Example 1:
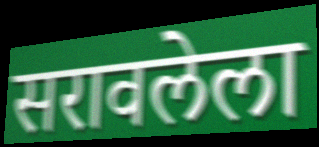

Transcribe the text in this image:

सरावलेला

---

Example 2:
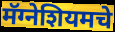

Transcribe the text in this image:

मॅग्नेशियमचे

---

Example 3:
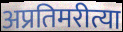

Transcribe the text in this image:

अप्रतिमरीत्या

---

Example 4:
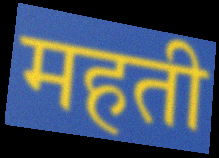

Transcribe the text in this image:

महती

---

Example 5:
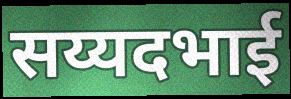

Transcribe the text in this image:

सय्यदभाई